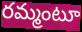
రమ్మంటూ